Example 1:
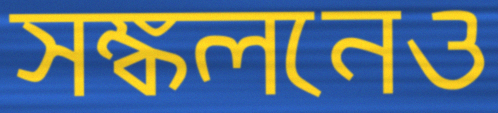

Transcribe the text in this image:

সঙ্কলনেও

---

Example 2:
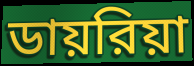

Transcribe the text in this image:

ডায়রিয়া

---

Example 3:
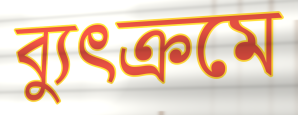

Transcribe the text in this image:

ব্যুৎক্রমে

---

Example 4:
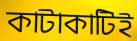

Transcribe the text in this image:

কাটাকাটিই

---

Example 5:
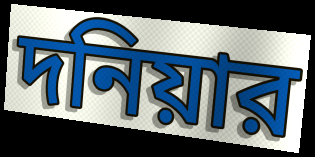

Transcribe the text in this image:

দনিয়ার